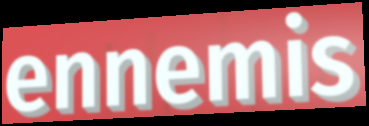
ennemis